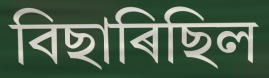
বিছাৰিছিল